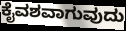
ಕೈವಶವಾಗುವುದು